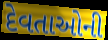
દેવતાઓની